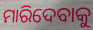
ମାରିଦେବାକୁ